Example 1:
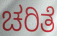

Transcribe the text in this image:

ಚರಿತೆ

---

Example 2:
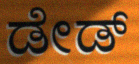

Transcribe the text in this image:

ಡೇಡ್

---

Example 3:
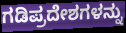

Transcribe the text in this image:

ಗಡಿಪ್ರದೇಶಗಳನ್ನು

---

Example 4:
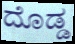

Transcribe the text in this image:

ದೊಡ್ಡ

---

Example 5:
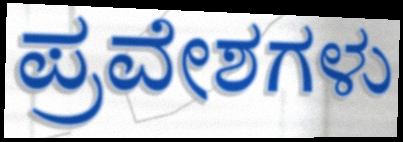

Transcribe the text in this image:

ಪ್ರವೇಶಗಳು